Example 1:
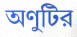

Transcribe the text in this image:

অণুটির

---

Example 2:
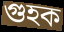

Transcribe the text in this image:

গুহক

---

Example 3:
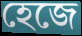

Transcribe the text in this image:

হেজে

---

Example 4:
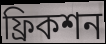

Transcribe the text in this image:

ফ্রিকশন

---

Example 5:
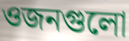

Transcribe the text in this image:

ওজনগুলো